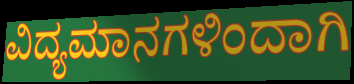
ವಿದ್ಯಮಾನಗಳಿಂದಾಗಿ